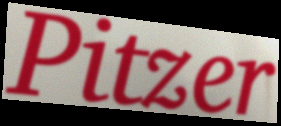
Pitzer